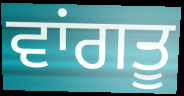
ਵਾਂਗਤੂ